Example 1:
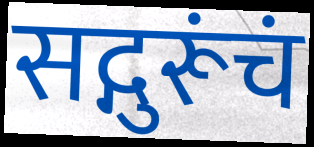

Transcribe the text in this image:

सद्गुरूंचं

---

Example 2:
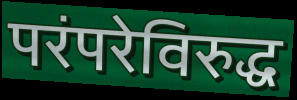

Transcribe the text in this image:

परंपरेविरुद्ध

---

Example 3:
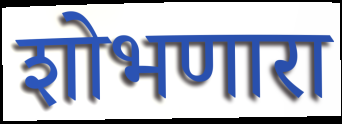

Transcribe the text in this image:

शोभणारा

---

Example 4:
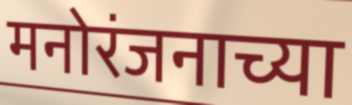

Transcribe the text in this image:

मनोरंजनाच्या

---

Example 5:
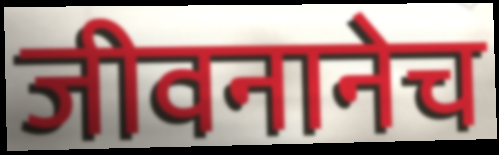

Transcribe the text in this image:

जीवनानेच